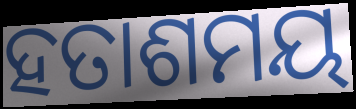
ହତାଶମୟ